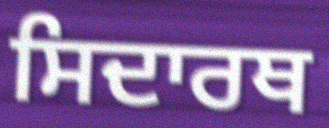
ਸਿਦਾਰਥ